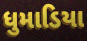
ધુમાડિયા